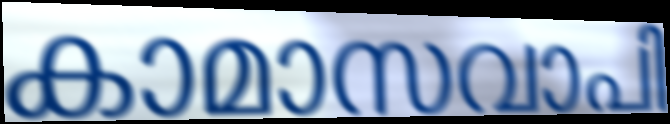
കാമാസവാപി